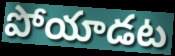
పోయాడట